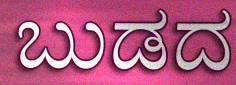
ಬುಡದ